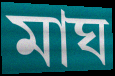
মাঘ